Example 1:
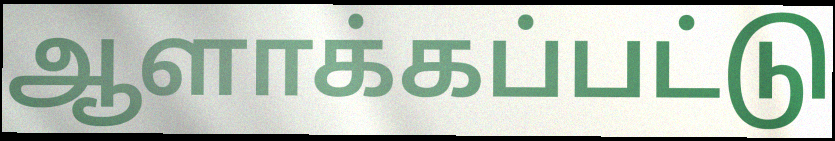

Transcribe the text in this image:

ஆளாக்கப்பட்டு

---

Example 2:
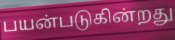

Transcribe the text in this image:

பயன்படுகின்றது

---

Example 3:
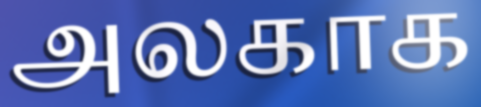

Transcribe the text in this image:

அலகாக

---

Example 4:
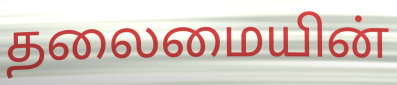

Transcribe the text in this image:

தலைமையின்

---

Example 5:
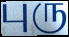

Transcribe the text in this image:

புரு